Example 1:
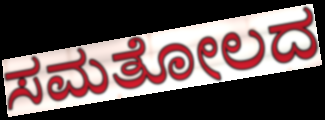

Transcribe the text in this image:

ಸಮತೋಲದ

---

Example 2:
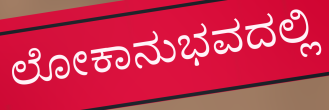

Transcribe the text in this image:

ಲೋಕಾನುಭವದಲ್ಲಿ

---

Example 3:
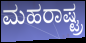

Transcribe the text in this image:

ಮಹರಾಷ್ಟ್ರ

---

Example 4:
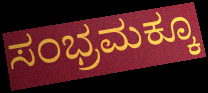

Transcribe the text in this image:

ಸಂಭ್ರಮಕ್ಕೂ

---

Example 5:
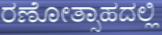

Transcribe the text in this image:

ರಣೋತ್ಸಾಹದಲ್ಲಿ